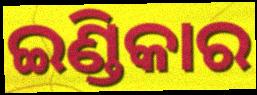
ଇଣ୍ଡିକାର